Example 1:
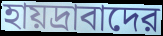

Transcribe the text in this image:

হায়দ্রাবাদের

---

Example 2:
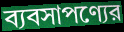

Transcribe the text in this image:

ব্যবসাপণ্যের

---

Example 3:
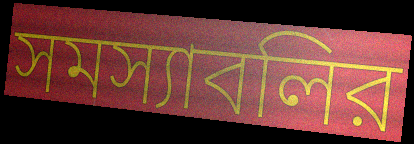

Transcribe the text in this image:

সমস্যাবলির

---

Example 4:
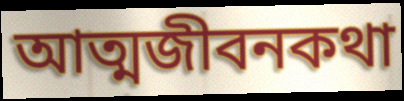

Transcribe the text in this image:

আত্মজীবনকথা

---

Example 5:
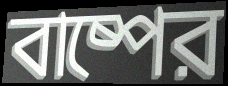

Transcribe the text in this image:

বাষ্পের